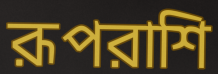
রূপরাশি